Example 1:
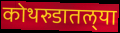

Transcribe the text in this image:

कोथरुडातल्या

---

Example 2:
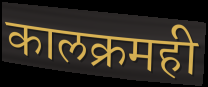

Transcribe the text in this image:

कालक्रमही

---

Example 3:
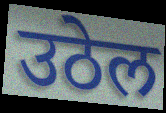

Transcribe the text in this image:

उठेल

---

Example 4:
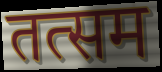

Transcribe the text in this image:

तत्सम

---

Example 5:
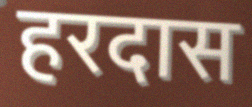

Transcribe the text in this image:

हरदास